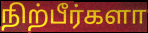
நிற்பீர்களா